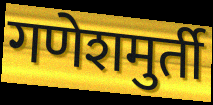
गणेशमुर्ती